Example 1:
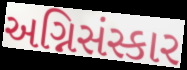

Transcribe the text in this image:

અગ્નિસંસ્કાર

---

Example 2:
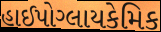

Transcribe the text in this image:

હાઈપોગ્લાયકેમિક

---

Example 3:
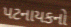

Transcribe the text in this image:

પટનાયકનો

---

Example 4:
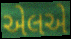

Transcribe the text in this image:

એલએ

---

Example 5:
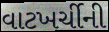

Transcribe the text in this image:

વાટખર્ચીની